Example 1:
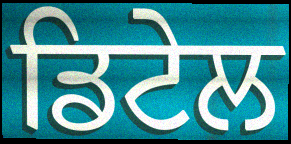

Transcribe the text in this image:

ਡਿਟੇਲ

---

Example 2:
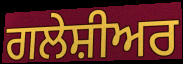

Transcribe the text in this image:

ਗਲੇਸ਼ੀਅਰ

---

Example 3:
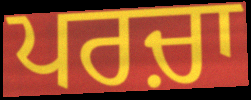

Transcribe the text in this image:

ਪਰਚ਼ਾ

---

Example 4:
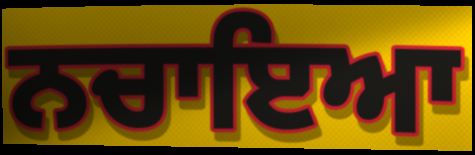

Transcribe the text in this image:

ਨਚਾਇਆ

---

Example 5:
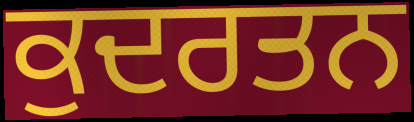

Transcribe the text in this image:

ਕੁਦਰਤਨ